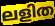
ലളിത